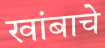
खांबाचे